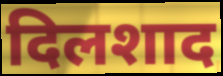
दिलशाद